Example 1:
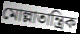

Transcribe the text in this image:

মোল্লাতান্ত্রিক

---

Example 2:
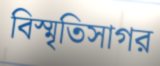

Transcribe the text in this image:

বিস্মৃতিসাগর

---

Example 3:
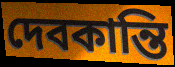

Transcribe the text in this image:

দেবকান্তি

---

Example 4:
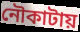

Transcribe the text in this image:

নৌকাটায়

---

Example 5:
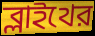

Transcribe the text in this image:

ব্লাইথের